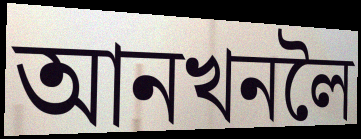
আনখনলৈ